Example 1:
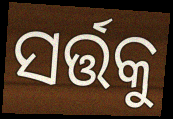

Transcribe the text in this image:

ସର୍ତ୍ତକୁ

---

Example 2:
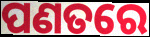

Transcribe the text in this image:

ପଣତରେ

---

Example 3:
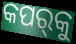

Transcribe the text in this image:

କପର୍‌କୁ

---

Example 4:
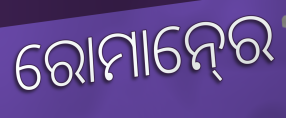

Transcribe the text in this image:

ରୋମାନ୍‍ରେ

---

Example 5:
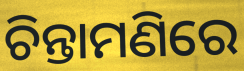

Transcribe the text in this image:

ଚିନ୍ତାମଣିରେ